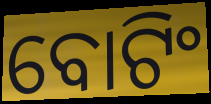
ବୋଟିଂ